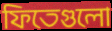
ফিতেগুলো